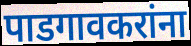
पाडगावकरांना